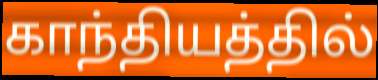
காந்தியத்தில்